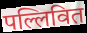
पल्लिवित